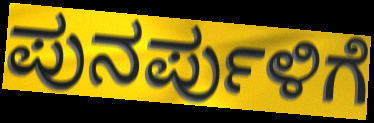
ಪುನರ್ಪುಳಿಗೆ